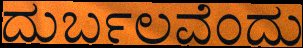
ದುರ್ಬಲವೆಂದು